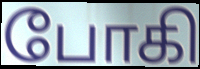
போகி